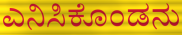
ಎನಿಸಿಕೊಂಡನು